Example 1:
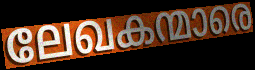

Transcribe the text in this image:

ലേഖകന്മാരെ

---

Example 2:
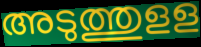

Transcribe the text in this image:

അടുത്തുളള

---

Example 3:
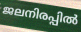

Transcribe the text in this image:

ജലനിരപ്പിൽ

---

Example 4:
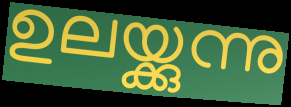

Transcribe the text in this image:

ഉലയ്ക്കുന്നു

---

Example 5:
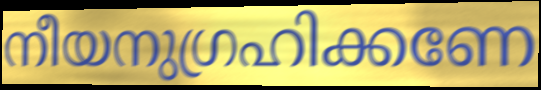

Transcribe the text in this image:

നീയനുഗ്രഹിക്കണേ